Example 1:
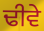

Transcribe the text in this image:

ਢੀਵੇ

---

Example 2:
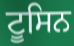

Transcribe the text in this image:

ਟੂਸਿਨ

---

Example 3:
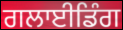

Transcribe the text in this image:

ਗਲਾਈਡਿੰਗ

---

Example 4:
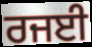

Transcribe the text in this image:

ਰਜਈ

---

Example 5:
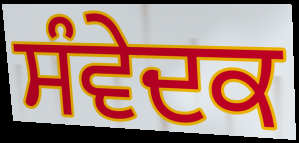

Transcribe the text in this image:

ਸੰਵੇਦਕ